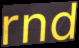
rnd